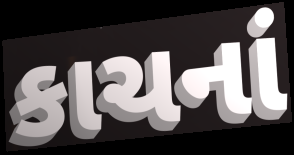
કાચનાં